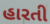
હારતી